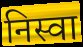
निस्वा